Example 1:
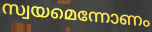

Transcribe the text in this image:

സ്വയമെന്നോണം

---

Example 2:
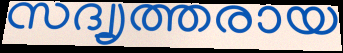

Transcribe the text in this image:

സദ്വൃത്തരായ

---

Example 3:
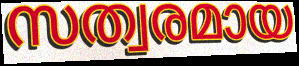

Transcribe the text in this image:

സത്വരമായ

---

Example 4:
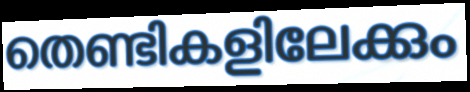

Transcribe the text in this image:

തെണ്ടികളിലേക്കും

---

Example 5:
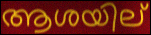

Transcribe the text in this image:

ആശയില്